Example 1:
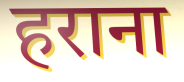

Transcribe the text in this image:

हराना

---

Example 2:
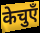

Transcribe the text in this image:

केचुएँ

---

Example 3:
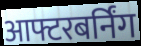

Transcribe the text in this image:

आफ्टरबर्निंग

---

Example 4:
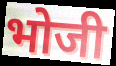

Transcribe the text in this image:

भोजी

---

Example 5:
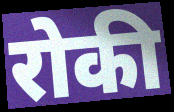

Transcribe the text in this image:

रोकी